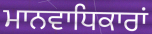
ਮਾਨਵਾਧਿਕਾਰਾਂ